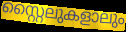
സ്റ്റൈലുകളാലും